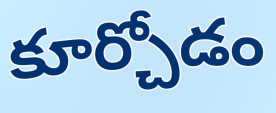
కూర్చోడం